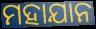
ମହାଯାନ